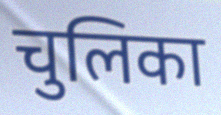
चुलिका